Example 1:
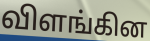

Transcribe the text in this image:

விளங்கின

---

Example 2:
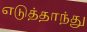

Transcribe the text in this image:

எடுத்தாந்து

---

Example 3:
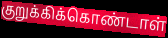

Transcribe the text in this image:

குறுக்கிக்கொண்டாள்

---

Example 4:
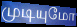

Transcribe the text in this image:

முடியுமோ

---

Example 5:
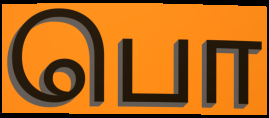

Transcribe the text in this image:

பொ